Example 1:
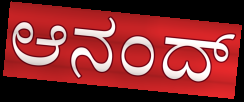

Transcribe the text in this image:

ಆನಂದ್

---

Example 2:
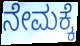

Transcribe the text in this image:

ನೇಮಕ್ಕೆ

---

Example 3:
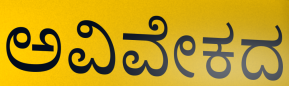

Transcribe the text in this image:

ಅವಿವೇಕದ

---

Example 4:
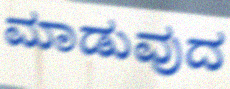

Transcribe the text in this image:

ಮಾಡುವುದ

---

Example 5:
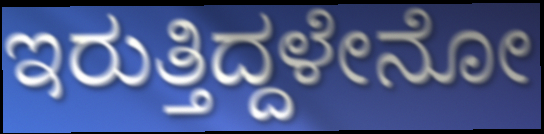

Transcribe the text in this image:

ಇರುತ್ತಿದ್ದಳೇನೋ